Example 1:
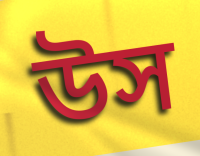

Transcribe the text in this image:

উস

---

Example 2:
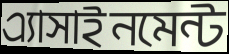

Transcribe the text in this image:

এ্যাসাইনমেন্ট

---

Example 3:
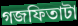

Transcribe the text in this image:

গজফিতাটা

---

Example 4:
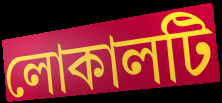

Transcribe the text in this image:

লোকালটি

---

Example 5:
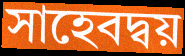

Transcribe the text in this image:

সাহেবদ্বয়